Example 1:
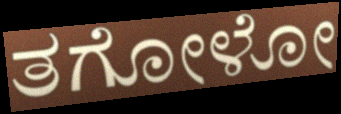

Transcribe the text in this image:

ತಗೋಳೋ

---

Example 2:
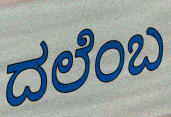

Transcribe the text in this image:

ದಲೆಂಬ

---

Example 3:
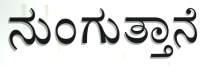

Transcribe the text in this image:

ನುಂಗುತ್ತಾನೆ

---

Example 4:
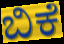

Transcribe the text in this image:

ಬಿಕೆ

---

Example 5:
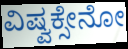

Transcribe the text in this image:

ವಿಷ್ವಕ್ಸೇನೋ